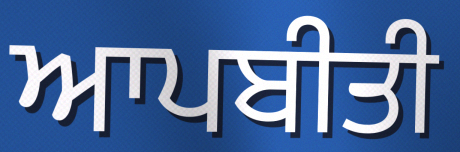
ਆਪਬੀਤੀ